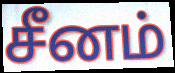
சீனம்